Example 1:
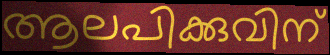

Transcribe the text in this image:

ആലപിക്കുവിന്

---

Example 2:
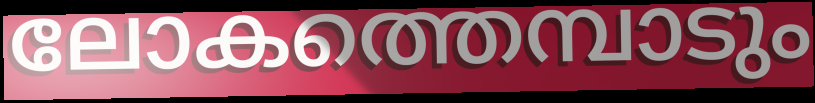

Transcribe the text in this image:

ലോകത്തെമ്പാടും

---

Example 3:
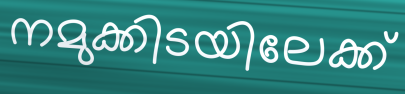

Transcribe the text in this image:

നമുക്കിടയിലേക്ക്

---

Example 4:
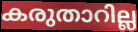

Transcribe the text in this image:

കരുതാറില്ല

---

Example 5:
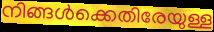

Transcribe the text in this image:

നിങ്ങൾക്കെതിരേയുള്ള